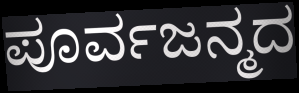
ಪೂರ್ವಜನ್ಮದ